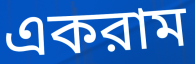
একরাম